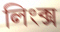
লিংক্স